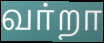
வர்றா